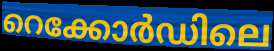
റെക്കോർഡിലെ